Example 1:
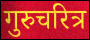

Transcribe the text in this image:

गुरुचरित्र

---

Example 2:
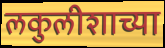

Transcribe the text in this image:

लकुलीशाच्या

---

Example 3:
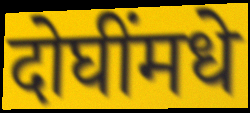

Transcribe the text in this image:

दोघींमधे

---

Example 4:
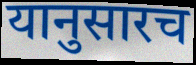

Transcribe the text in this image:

यानुसारच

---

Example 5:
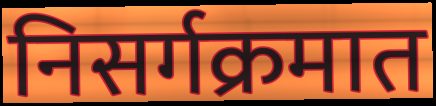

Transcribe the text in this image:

निसर्गक्रमात